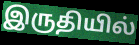
இருதியில்